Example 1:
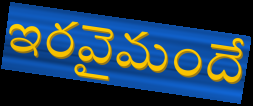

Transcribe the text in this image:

ఇరవైమందే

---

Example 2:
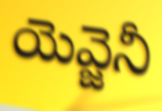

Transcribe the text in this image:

యెవ్జెనీ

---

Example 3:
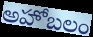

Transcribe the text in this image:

అహోబలం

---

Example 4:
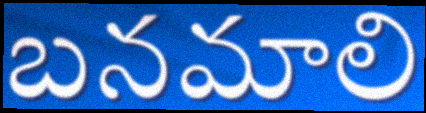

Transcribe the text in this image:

బనమాలి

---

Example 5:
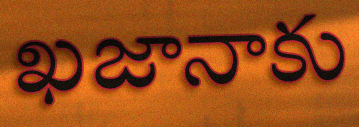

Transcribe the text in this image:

ఖజానాకు